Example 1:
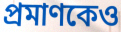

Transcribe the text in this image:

প্রমাণকেও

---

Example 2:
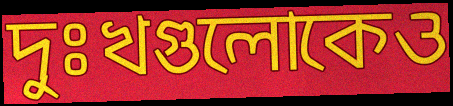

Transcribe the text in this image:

দুঃখগুলোকেও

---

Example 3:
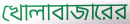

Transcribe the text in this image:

খোলাবাজারের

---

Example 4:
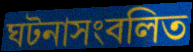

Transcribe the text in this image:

ঘটনাসংবলিত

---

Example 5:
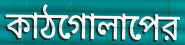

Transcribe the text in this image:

কাঠগোলাপের